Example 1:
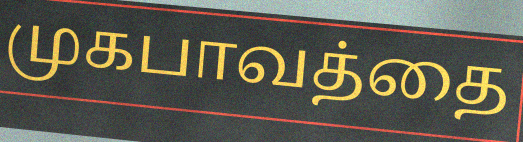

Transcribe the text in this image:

முகபாவத்தை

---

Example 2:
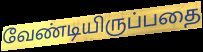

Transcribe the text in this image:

வேண்டியிருப்பதை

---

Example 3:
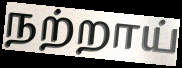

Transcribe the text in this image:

நற்றாய்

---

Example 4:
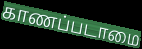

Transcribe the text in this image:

காணப்படாமை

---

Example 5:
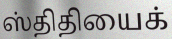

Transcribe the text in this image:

ஸ்திதியைக்